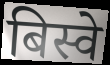
बिस्वे